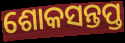
ଶୋକସନ୍ତପ୍ତ